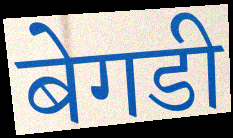
बेगडी